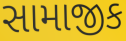
સામાજીક